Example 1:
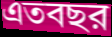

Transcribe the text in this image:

এতবছর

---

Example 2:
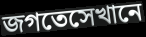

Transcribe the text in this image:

জগতেসেখানে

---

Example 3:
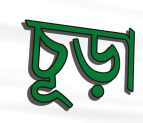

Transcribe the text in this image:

চূড়া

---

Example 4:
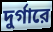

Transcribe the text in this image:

দুর্গারে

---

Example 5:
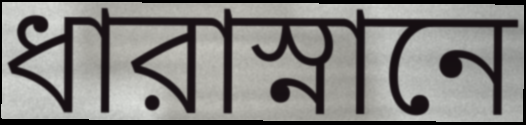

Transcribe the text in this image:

ধারাস্নানে